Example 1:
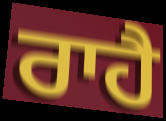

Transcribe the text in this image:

ਰਾਹੈ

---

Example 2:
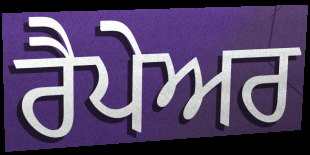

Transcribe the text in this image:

ਰੈਪੇਅਰ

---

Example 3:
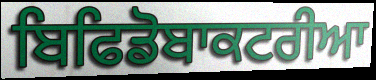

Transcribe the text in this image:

ਬਿਫਿਡੋਬਾਕਟਰੀਆ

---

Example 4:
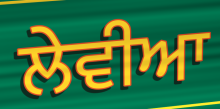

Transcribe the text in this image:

ਲੇਵੀਆ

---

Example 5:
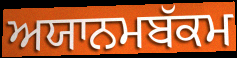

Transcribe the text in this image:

ਅਯਾਨਮਬੱਕਮ